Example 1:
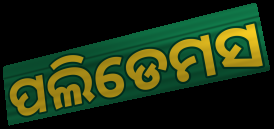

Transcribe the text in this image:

ପଲିଡେମସ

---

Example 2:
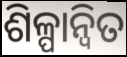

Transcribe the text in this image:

ଶିଳ୍ପାନ୍ବିତ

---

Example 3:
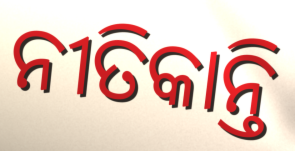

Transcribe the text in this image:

ନୀତିକାନ୍ତି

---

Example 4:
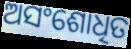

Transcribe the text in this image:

ଅସଂଶୋଧିତ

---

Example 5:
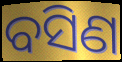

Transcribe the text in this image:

ବସିଣ